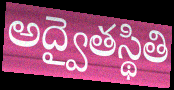
అద్వైతస్థితి